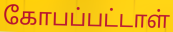
கோபப்பட்டாள்